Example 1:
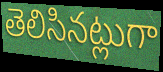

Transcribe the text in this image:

తెలిసినట్లుగా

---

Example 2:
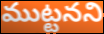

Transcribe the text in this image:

ముట్టనని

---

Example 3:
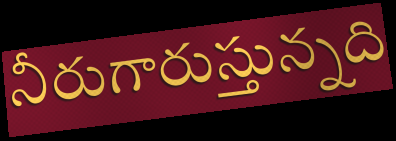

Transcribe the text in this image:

నీరుగారుస్తున్నది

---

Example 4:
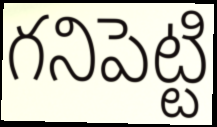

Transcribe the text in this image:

గనిపెట్టి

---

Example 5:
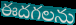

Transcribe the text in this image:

ఈదగలను